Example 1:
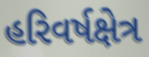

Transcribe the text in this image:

હરિવર્ષક્ષેત્ર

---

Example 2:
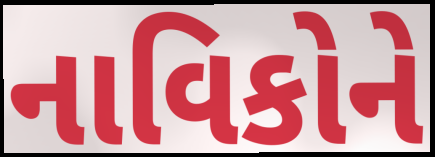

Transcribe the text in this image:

નાવિકોને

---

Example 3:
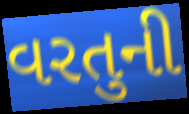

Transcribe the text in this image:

વરતુની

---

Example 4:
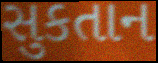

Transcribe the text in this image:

સુકતાન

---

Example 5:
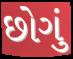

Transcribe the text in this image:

છોગું